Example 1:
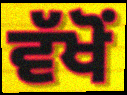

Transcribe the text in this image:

ਵੱਖੋਂ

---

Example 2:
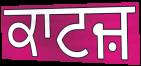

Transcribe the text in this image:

ਕਾਟਜ਼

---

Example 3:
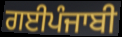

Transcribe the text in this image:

ਗਈਪੰਜਾਬੀ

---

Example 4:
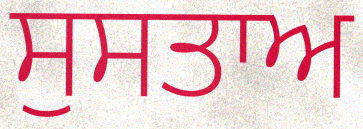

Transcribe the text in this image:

ਸੁਸਤਾਅ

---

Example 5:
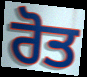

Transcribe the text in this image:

ਰੋਤ